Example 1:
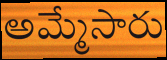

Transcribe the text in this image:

అమ్మేసారు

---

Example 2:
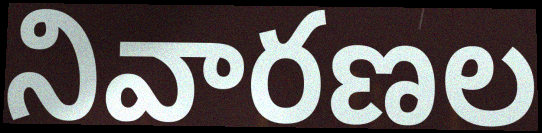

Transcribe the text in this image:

నివారణల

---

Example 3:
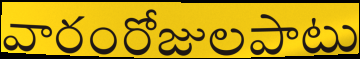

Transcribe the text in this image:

వారంరోజులపాటు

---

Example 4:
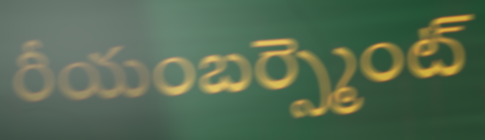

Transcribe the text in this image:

రీయంబర్స్మెంట్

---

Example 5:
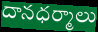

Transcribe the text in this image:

దానధర్మాలు